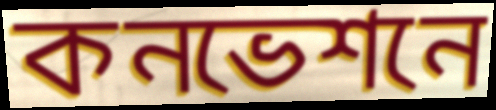
কনভেশনে